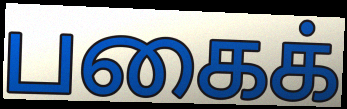
பகைக்